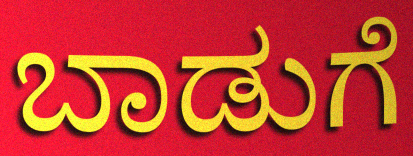
ಬಾಡುಗೆ